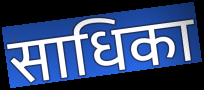
साधिका